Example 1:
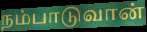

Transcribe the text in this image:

நம்பாடுவான்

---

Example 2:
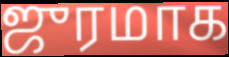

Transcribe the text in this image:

ஜுரமாக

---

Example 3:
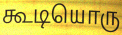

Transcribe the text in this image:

கூடியொரு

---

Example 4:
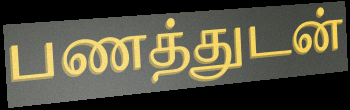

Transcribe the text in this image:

பணத்துடன்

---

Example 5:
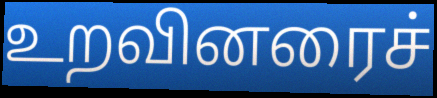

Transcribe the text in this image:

உறவினரைச்